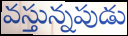
వస్తున్నపుడు